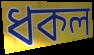
ধকল